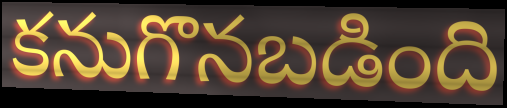
కనుగొనబడింది